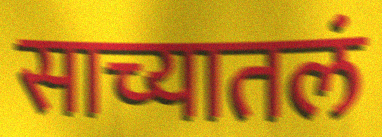
साच्यातलं